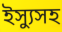
ইস্যুসহ